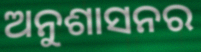
ଅନୁଶାସନର